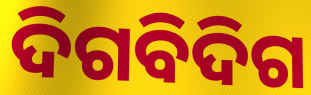
ଦିଗବିଦିଗ